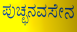
ಪುಚ್ಛನವಸೇನ